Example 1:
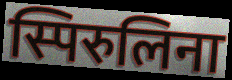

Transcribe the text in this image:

स्पिरुलिना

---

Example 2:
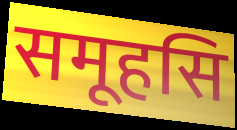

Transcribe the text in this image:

समूहसि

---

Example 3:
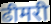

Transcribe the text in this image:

ढीमरी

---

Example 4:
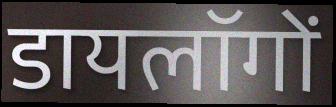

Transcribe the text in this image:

डायलॉगों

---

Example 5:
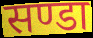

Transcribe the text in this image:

सण्डा